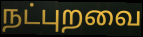
நட்புறவை